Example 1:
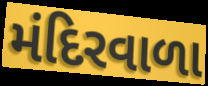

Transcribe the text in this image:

મંદિરવાળા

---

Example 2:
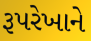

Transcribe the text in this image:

રૂપરેખાને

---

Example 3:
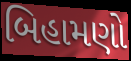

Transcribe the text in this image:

બિહામણો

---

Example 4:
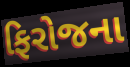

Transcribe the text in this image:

ફિરોજના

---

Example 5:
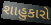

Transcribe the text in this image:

શાહુકારો